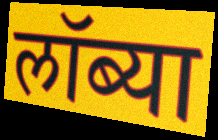
लॉब्या